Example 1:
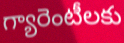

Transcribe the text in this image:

గ్యారెంటీలకు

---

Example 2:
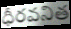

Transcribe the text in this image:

ధీరవనిత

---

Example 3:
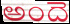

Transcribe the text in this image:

అందె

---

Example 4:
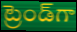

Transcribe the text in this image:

ట్రెండ్‌గా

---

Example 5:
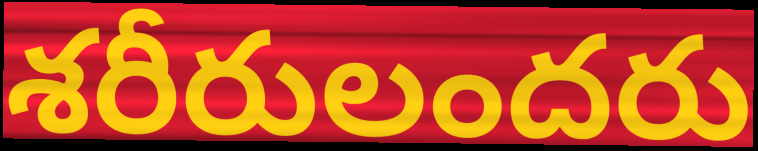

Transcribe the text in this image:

శరీరులందరు